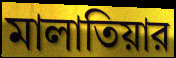
মালাতিয়ার